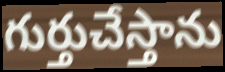
గుర్తుచేస్తాను